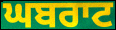
ਘਬਰਾਟ